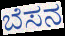
ಬೆಸನ